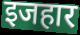
इजहार